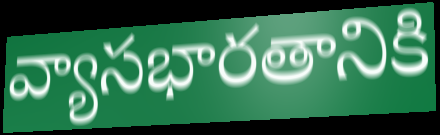
వ్యాసభారతానికి